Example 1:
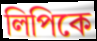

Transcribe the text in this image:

লিপিকে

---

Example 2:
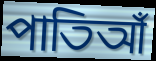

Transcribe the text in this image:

পাতিআঁ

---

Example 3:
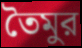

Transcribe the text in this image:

তৈমুর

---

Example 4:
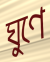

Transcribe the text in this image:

ঘুণে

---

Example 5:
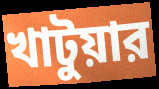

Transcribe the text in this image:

খাটুয়ার